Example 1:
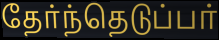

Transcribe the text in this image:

தேர்ந்தெடுப்பர்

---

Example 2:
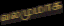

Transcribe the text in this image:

வலமுமாக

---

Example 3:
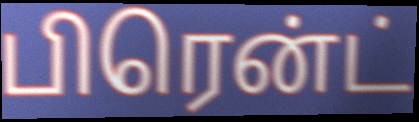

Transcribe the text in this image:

பிரென்ட்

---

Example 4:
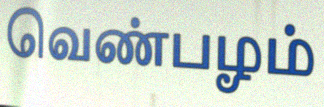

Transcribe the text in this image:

வெண்பழம்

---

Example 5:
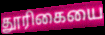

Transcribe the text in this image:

தூரிகையை